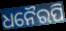
ଧନୈରପି